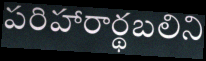
పరిహారార్థబలిని